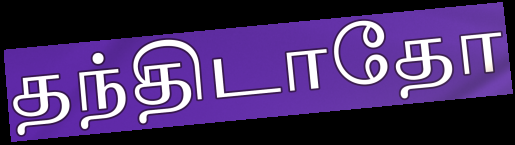
தந்திடாதோ